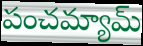
పంచమ్యామ్